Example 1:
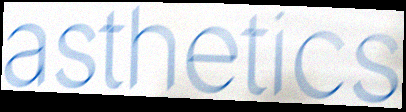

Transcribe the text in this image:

asthetics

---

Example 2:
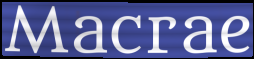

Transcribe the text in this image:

Macrae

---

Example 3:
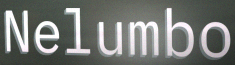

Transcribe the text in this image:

Nelumbo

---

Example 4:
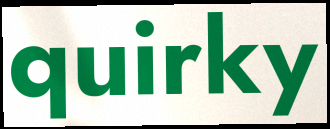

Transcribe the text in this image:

quirky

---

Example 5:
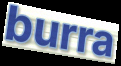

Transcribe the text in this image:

burra